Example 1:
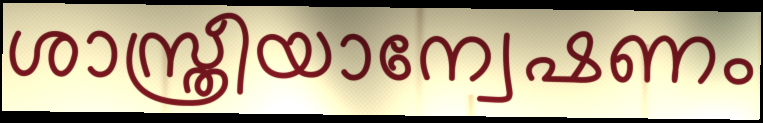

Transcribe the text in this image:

ശാസ്ത്രീയാന്വേഷണം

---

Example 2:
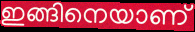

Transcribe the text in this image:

ഇങ്ങിനെയാണ്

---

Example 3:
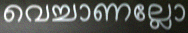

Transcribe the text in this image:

വെച്ചാണല്ലോ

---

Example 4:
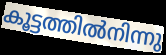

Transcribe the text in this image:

കൂട്ടത്തിൽനിന്നു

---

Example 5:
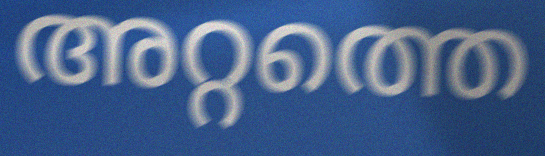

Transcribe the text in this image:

അറ്റത്തെ